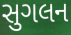
સુગલન